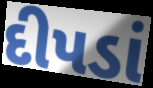
દીપડાં